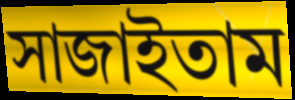
সাজাইতাম